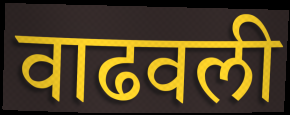
वाढवली